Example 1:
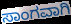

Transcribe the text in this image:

ಸಾಂಗವಾಗಿ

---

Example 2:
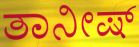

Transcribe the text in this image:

ತಾನೀಷ್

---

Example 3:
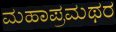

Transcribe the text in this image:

ಮಹಾಪ್ರಮಥರ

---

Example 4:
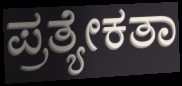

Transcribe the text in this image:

ಪ್ರತ್ಯೇಕತಾ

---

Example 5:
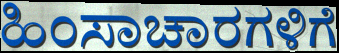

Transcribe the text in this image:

ಹಿಂಸಾಚಾರಗಳಿಗೆ